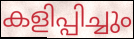
കളിപ്പിച്ചും